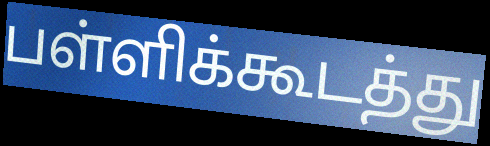
பள்ளிக்கூடத்து